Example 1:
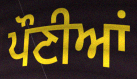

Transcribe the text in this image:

ਪੌਣੀਆਂ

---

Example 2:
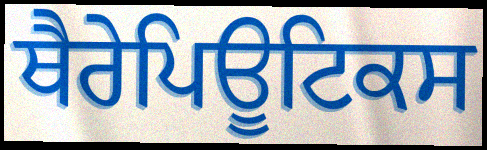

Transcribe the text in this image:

ਥੈਰੇਪਿਊਟਿਕਸ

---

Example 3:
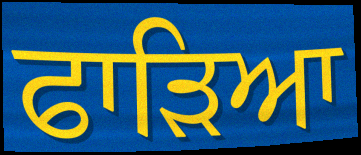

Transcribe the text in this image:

ਫਾੜਿਆ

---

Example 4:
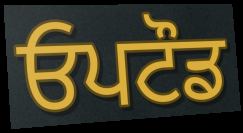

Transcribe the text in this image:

ਓਪਟੌਡ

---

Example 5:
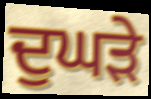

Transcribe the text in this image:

ਦੁਘੜੇ